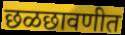
छळछावणीत